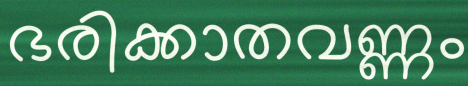
ഭരിക്കാതവണ്ണം